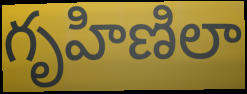
గృహిణిలా